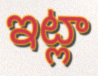
ఇట్లా